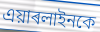
এয়াৰলাইনকে